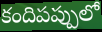
కందిపప్పులో